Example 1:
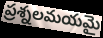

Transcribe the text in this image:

ప్రశ్నలమయమై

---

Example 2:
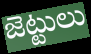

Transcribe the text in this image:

జెట్టులు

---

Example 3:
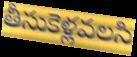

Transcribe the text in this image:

తీసుకెళ్లవలసి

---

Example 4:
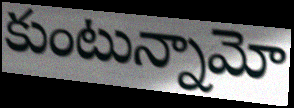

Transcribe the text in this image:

కుంటున్నామో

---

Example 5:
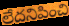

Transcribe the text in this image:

లేదనిపించి